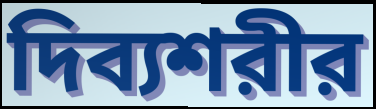
দিব্যশরীর